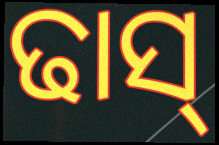
ଢାସ୍